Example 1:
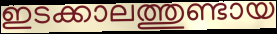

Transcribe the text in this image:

ഇടക്കാലത്തുണ്ടായ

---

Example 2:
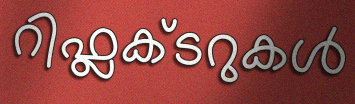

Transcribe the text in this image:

റിഫ്ലക്ടറുകൾ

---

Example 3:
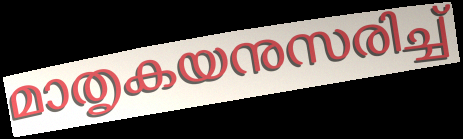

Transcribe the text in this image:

മാതൃകയനുസരിച്ച്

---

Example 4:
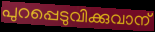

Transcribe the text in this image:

പുറപ്പെടുവിക്കുവാന്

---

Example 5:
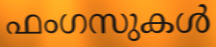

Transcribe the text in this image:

ഫംഗസുകൾ